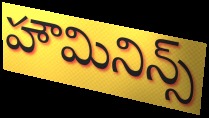
హౌమినిన్స్